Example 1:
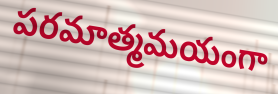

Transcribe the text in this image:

పరమాత్మమయంగా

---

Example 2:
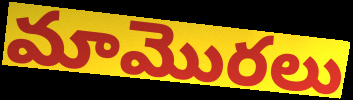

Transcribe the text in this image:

మామొరలు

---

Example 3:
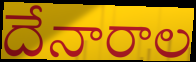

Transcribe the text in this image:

దేనారాల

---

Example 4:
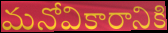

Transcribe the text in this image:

మనోవికారానికి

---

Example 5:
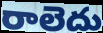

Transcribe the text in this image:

రాలెదు